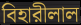
বিহারীলাল